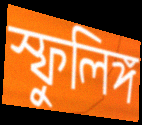
স্ফুলিঙ্গ